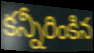
కన్నీరింకిన